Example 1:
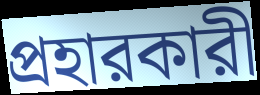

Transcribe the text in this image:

প্রহারকারী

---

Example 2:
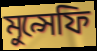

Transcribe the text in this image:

মুন্সেফি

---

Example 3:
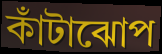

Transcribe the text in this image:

কাঁটাঝোপ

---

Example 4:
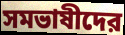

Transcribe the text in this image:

সমভাষীদের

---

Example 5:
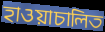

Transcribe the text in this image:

হাওয়াচালিত